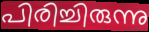
പിരിച്ചിരുന്നു